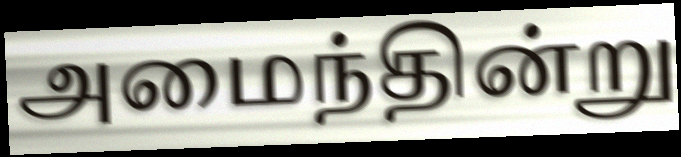
அமைந்தின்று